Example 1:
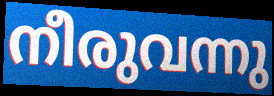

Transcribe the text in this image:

നീരുവന്നു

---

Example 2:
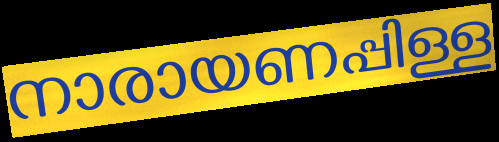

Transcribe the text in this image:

നാരായണപ്പിള്ള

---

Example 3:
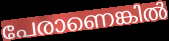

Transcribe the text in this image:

പേരാണെങ്കിൽ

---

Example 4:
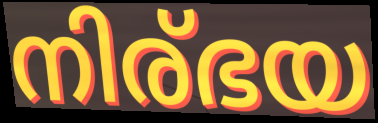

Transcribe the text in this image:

നിര്ഭയ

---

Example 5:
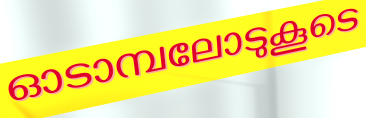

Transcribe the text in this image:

ഓടാമ്പലോടുകൂടെ